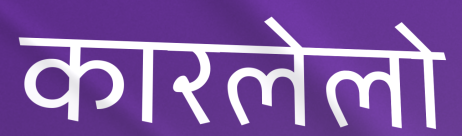
कारलेलो